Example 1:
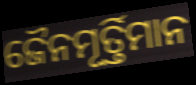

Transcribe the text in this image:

ଜୈନମୂର୍ତ୍ତିମାନ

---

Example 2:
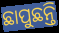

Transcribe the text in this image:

ଛାପୁଛନ୍ତି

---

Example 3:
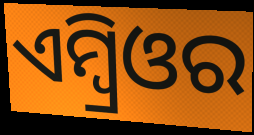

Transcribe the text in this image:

ଏମ୍ବ୍ରିଓର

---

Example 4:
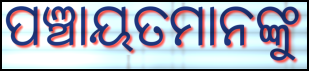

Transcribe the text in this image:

ପଞ୍ଚାୟତମାନଙ୍କୁ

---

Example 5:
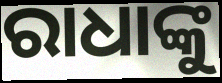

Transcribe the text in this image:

ରାଧାଙ୍କୁ